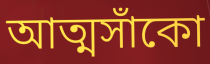
আত্মসাঁকো